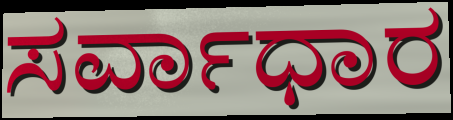
ಸರ್ವಾಧಾರ